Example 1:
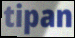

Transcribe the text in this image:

tipan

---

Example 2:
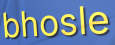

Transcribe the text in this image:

bhosle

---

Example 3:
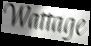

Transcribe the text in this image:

Wattage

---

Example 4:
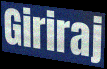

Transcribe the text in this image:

Giriraj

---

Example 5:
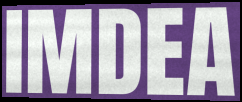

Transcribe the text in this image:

IMDEA